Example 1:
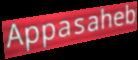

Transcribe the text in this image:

Appasaheb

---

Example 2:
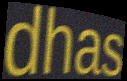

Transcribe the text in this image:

dhas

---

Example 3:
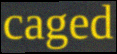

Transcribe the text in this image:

caged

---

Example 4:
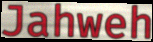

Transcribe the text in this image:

Jahweh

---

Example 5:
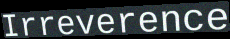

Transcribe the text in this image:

Irreverence